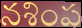
నశింప